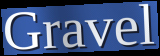
Gravel